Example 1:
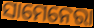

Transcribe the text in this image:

ସାମେନେରା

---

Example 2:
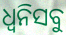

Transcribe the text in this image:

ଧ୍ୱନିସବୁ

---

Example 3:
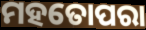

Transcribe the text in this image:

ମହତୋପରା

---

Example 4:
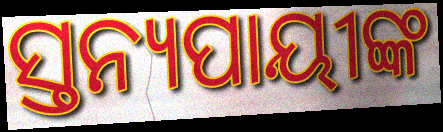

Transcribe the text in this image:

ସ୍ତନ୍ୟପାୟୀଙ୍କ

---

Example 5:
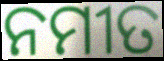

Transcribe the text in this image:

ନମୀତ